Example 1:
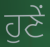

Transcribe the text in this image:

ਹੁਣੇਂ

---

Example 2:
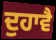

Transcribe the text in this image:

ਦੁਹਾਵੈ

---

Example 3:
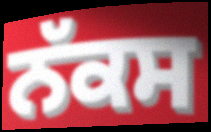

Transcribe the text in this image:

ਨੱਕਸ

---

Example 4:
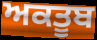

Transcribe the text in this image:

ਅਕਤੂਬ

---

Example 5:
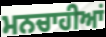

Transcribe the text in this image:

ਮਨਚਾਹੀਆਂ